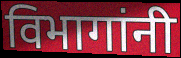
विभागांनी